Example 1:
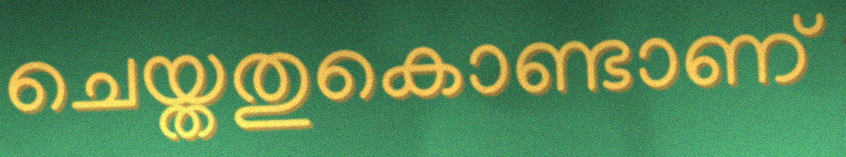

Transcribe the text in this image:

ചെയ്തതുകൊണ്ടാണ്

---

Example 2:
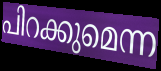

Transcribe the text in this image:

പിറക്കുമെന്ന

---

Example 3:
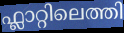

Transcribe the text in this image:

ഫ്ലാറ്റിലെത്തി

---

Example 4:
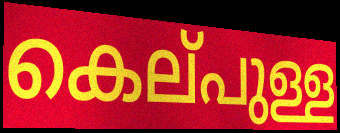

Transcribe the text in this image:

കെല്‌പുള്ള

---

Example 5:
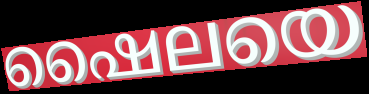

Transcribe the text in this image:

ഷൈലയെ